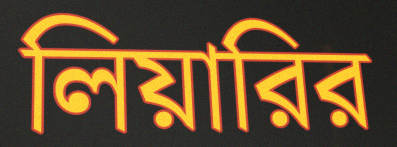
লিয়ারির